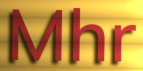
Mhr